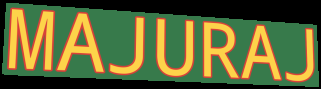
MAJURAJ